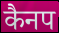
कैनप